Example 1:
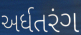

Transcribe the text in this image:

અર્ધતરંગ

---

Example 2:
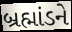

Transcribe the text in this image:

બ્રહ્માંડને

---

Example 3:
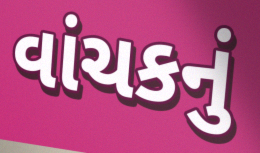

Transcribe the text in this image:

વાંચકનું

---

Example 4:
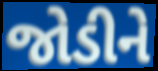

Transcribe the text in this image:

જોડીને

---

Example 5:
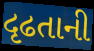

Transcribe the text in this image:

દૃઢતાની